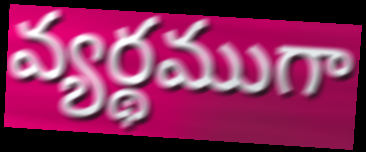
వ్యర్థముగా